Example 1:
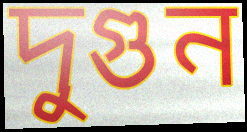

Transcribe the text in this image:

দুগুন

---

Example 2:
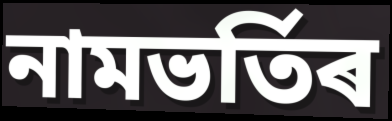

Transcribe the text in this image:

নামভৰ্তিৰ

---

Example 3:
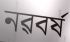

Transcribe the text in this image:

নৱবৰ্ষ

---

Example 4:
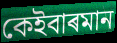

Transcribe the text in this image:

কেইবাৰমান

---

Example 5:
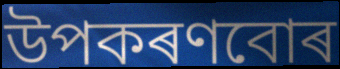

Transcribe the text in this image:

উপকৰণবোৰ